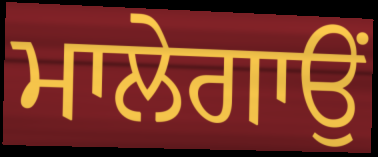
ਮਾਲੇਗਾਉਂ